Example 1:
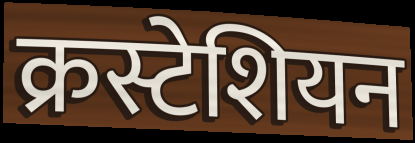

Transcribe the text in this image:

क्रस्टेशियन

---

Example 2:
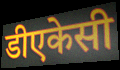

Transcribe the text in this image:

डीएकेसी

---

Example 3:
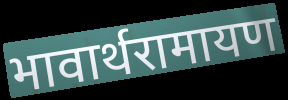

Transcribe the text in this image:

भावार्थरामायण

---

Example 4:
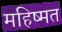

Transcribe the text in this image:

महिष्मत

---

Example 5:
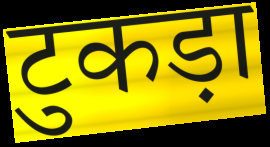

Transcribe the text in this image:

टुकड़ा